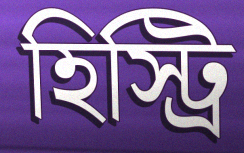
হিস্ট্রি